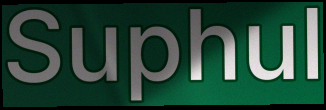
Suphul